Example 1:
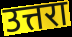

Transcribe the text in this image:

उत्तरा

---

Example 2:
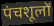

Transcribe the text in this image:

पंचशूलों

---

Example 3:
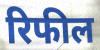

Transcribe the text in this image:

रिफील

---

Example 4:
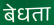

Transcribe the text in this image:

बेधता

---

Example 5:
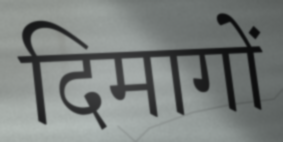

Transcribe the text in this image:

दिमागों